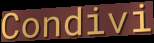
Condivi